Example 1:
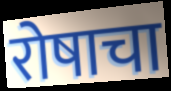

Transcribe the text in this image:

रोषाचा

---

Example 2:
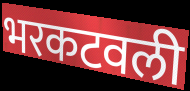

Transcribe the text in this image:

भरकटवली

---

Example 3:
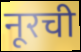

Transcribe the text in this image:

नूरची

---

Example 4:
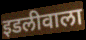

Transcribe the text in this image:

इडलीवाला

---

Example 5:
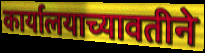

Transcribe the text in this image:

कार्यालयाच्यावतीने